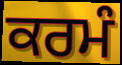
ਕਰਮੰ